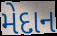
મેદાન